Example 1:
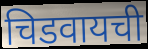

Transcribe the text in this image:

चिडवायची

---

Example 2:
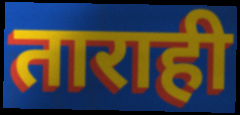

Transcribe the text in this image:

ताराही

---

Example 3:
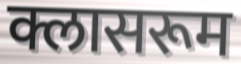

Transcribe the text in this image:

क्लासरूम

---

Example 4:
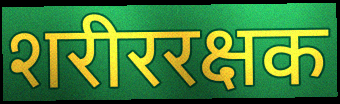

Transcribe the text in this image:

शरीररक्षक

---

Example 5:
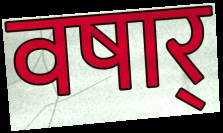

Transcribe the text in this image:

वषार्